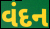
વંદન